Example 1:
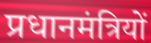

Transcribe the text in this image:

प्रधानमंत्रियों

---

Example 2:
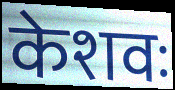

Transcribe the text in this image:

केशवः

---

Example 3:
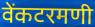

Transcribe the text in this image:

वेंकटरमणी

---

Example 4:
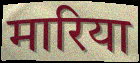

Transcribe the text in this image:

मारिया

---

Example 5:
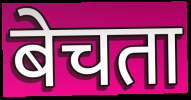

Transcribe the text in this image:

बेचता